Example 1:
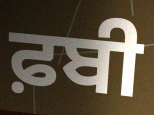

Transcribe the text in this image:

ਫ਼ਬੀ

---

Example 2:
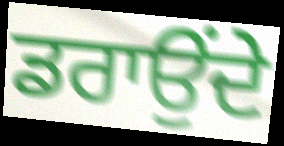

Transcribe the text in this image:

ਡਰਾਉਂਦੇ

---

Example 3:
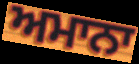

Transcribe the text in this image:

ਅਮਾਨਾ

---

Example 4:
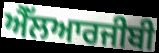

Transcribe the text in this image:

ਐੱਲਆਰਜੀਬੀ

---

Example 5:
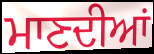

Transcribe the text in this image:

ਮਾਣਦੀਆਂ